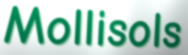
Mollisols